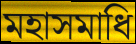
মহাসমাধি